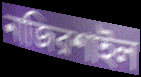
নাজিরশাইল